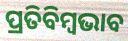
ପ୍ରତିବିମ୍ବଭାବ